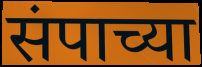
संपाच्या